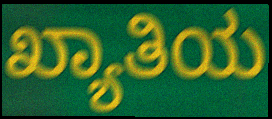
ಖ್ಯಾತಿಯ